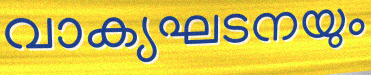
വാക്യഘടനയും